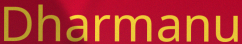
Dharmanu